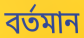
বর্তমান